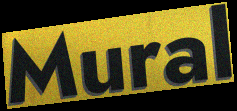
Mural